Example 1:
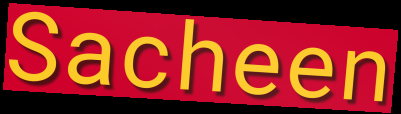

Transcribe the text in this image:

Sacheen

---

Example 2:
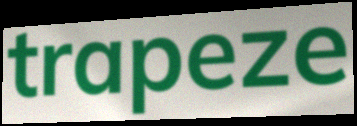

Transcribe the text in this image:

trapeze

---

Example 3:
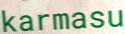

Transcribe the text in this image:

karmasu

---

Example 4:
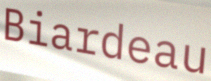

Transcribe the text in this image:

Biardeau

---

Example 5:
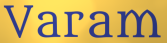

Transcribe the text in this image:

Varam